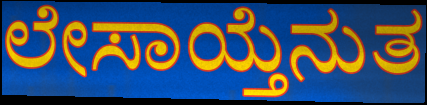
ಲೇಸಾಯ್ತೆನುತ